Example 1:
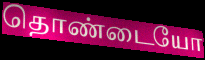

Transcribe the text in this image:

தொண்டையோ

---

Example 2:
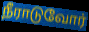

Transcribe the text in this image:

நீராடுவோர்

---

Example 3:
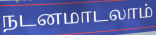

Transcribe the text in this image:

நடனமாடலாம்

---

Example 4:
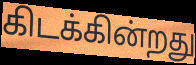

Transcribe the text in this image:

கிடக்கின்றது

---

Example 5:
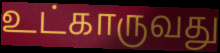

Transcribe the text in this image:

உட்காருவது